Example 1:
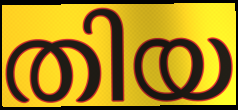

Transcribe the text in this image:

തിയ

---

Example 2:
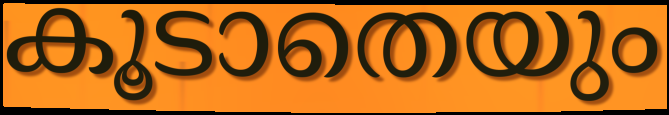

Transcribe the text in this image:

കൂടാതെയും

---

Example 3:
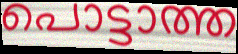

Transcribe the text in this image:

പൊട്ടാത്ത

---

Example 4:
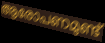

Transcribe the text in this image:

ആരോപണമുണ്ട്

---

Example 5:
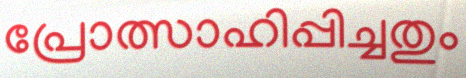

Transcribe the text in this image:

പ്രോത്സാഹിപ്പിച്ചതും